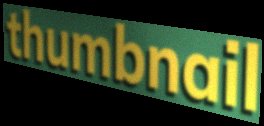
thumbnail